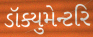
ડૉક્યુમેન્ટરિ